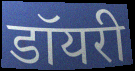
डॉयरी